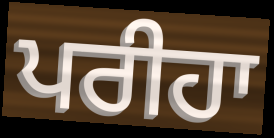
ਪਰੀਹਾ